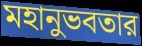
মহানুভবতার